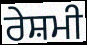
ਰੇਸ਼ਮੀ